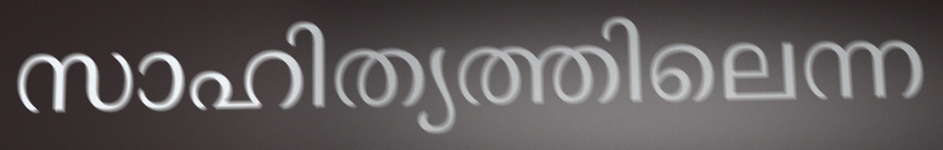
സാഹിത്യത്തിലെന്ന